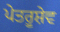
ਪੇਤਰੂਸ਼ੇਵ